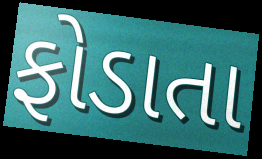
ફોડાતા